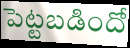
పెట్టబడిందో